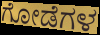
ಗೋಡೆಗಳ